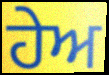
ਹੇਅ